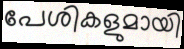
പേശികളുമായി